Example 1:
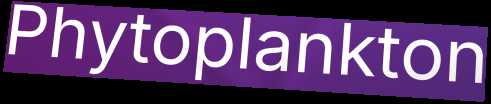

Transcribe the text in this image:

Phytoplankton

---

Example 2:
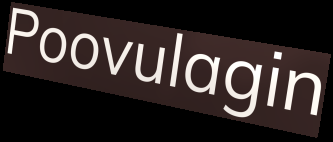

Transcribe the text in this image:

Poovulagin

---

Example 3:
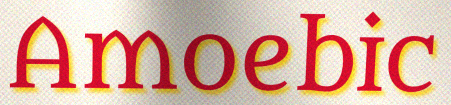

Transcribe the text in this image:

Amoebic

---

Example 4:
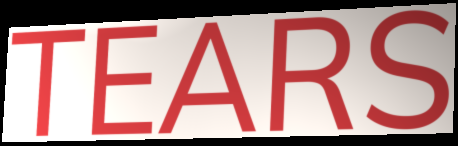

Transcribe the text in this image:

TEARS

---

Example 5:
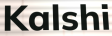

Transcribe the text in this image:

Kalshi